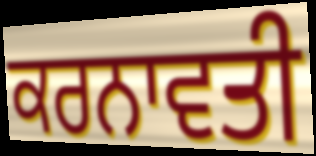
ਕਰਨਾਵਤੀ